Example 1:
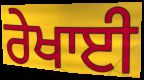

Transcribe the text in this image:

ਰੇਖਾਈ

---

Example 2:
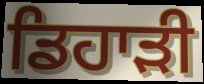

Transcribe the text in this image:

ਡਿਹਾੜੀ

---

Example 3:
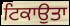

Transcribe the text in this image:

ਟਿਕਾਉਤਾ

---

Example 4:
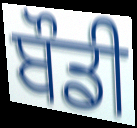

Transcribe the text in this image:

ਬੌਡੀ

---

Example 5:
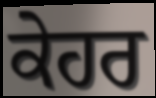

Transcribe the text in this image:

ਕੇਹਰ